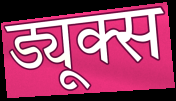
ड्यूक्‍स